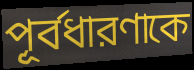
পূর্বধারণাকে